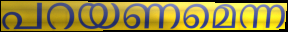
പറയണമെന്ന